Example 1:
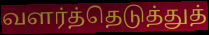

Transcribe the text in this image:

வளர்த்தெடுத்துத்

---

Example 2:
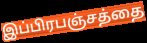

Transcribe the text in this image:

இப்பிரபஞ்சத்தை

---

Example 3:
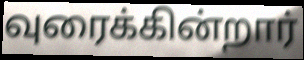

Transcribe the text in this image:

வுரைக்கின்றார்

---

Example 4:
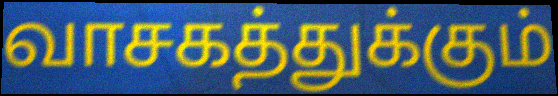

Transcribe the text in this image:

வாசகத்துக்கும்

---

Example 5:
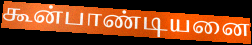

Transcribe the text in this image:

கூன்பாண்டியனை